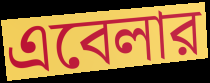
এবেলার